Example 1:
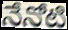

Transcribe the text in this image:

నేనోటి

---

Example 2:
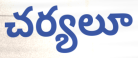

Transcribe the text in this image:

చర్యలూ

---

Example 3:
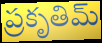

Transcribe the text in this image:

ప్రకృతిమ్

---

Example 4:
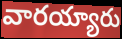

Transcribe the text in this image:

వారయ్యారు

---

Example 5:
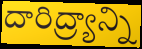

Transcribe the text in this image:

దారిద్ర్యాన్ని